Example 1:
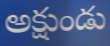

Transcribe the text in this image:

అక్షుండు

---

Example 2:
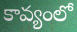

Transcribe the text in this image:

కావ్యంలో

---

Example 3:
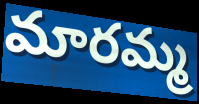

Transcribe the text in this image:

మారమ్మ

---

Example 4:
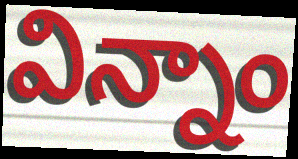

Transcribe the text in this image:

విన్నాం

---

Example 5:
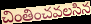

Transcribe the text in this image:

చింతించవలసిన